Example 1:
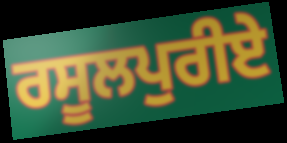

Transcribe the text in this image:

ਰਸੂਲਪੁਰੀਏ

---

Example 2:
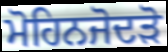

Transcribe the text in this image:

ਮੋਹਿਨਜੋਦੜੋ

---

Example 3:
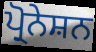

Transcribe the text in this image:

ਪ੍ਰੋਨੇਸ਼ਨ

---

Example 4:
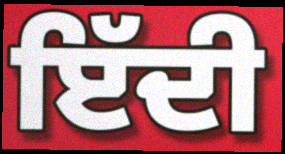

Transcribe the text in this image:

ਇੱਦੀ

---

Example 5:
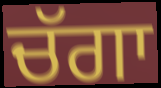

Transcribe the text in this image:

ਚੱਗਾ